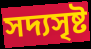
সদ্যসৃষ্ট